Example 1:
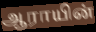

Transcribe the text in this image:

ஆராயின்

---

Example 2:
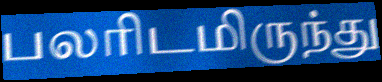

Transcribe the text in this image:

பலரிடமிருந்து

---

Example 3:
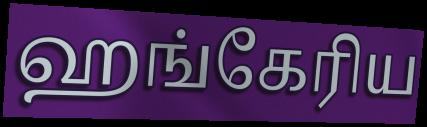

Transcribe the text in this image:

ஹங்கேரிய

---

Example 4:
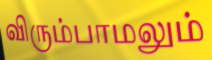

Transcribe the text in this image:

விரும்பாமலும்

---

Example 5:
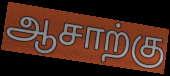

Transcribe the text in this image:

ஆசாற்கு